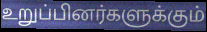
உறுப்பினர்களுக்கும்